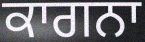
ਕਾਗਨਾ